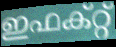
ഇഫക്റ്റ്